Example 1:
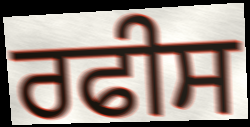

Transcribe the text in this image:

ਰਫੀਸ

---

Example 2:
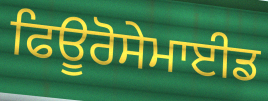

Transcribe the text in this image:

ਫਿਊਰੋਸੇਮਾਈਡ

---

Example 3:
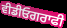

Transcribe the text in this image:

ਵੀਡੀਓਗਰਾਫੀ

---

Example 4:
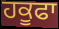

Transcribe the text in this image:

ਹਕੂਫਾ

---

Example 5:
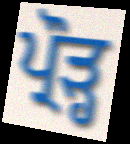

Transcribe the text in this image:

ਪ੍ਰੌੜ੍ਹ